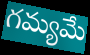
గమ్యమే